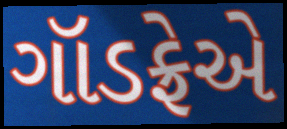
ગૉડફ્રેએ